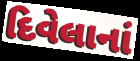
દિવેલાનાં